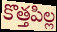
కొత్తపిల్ల